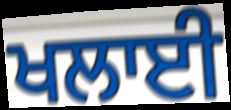
ਖਲਾਈ